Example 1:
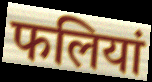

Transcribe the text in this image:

फलियां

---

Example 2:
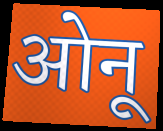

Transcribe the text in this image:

ओनू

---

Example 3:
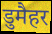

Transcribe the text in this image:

डुमैहर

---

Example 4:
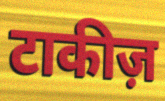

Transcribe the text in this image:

टाकीज़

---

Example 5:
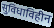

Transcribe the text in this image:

सुविधाविहीन